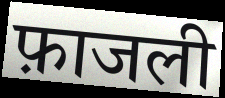
फ़ाजली